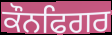
ਕੌਨਫਿਗਰ